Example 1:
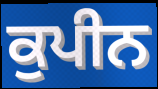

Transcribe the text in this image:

ਕੁਪੀਨ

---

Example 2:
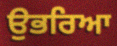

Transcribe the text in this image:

ਉਭਰਿਆ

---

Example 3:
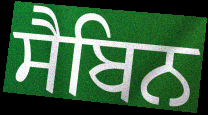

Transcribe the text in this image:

ਸੈਬਿਨ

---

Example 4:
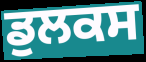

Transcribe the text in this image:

ਡੁਲਕਸ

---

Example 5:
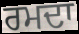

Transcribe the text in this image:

ਰਮਦਾ